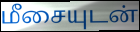
மீசையுடன்